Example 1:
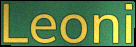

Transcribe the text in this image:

Leoni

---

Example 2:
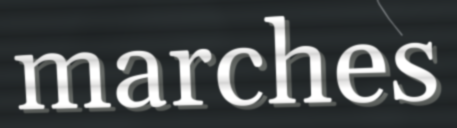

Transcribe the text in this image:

marches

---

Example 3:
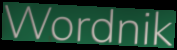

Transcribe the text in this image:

Wordnik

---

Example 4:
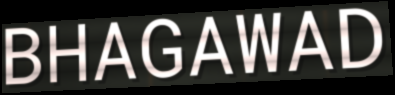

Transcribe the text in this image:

BHAGAWAD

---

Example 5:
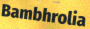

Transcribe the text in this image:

Bambhrolia